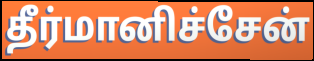
தீர்மானிச்சேன்